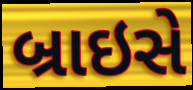
બ્રાઇસે